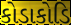
કોડાકોડિ